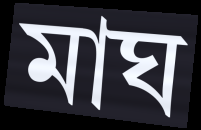
মাঘ